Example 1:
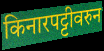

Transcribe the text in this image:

किनारपट्टीवरुन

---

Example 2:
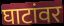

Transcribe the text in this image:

घाटांवर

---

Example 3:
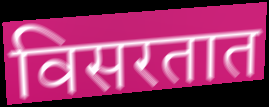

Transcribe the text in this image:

विसरतात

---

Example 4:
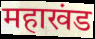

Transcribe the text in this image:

महाखंड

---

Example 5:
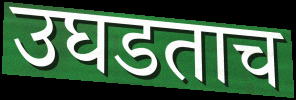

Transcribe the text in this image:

उघडताच